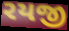
રયજી